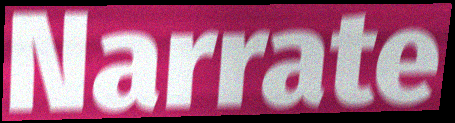
Narrate